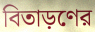
বিতাড়ণের